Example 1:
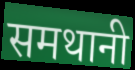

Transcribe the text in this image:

समथानी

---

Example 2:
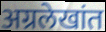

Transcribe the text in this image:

अग्रलेखांत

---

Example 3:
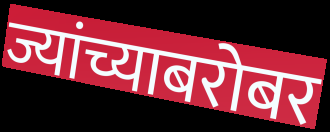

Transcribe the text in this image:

ज्यांच्याबरोबर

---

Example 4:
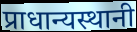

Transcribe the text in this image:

प्राधान्यस्थानी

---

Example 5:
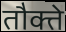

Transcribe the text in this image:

तौक्ते